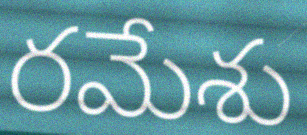
రమేశు